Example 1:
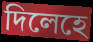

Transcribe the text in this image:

দিলেহে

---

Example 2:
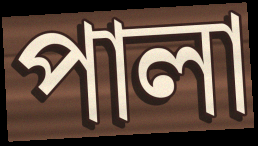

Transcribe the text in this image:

পালা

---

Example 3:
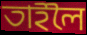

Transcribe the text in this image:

তাইলৈ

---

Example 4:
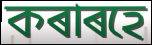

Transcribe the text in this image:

কৰাৰহে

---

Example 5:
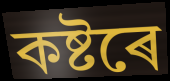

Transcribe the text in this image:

কষ্টৰে